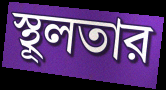
স্থূলতার